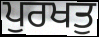
ਪੁਰਖਤੁ